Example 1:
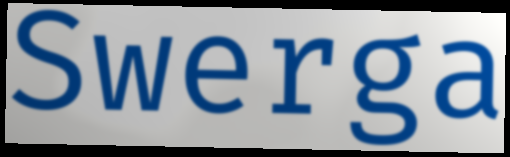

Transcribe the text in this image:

Swerga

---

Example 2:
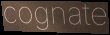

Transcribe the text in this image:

cognate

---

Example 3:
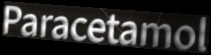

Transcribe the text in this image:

Paracetamol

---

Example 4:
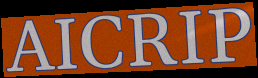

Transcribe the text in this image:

AICRIP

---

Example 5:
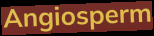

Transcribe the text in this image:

Angiosperm